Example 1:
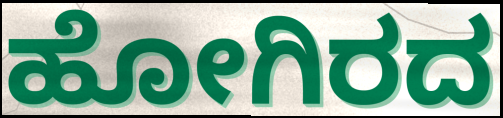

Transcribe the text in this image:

ಹೋಗಿರದ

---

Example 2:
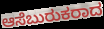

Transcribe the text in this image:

ಆಸೆಬುರುಕರಾದ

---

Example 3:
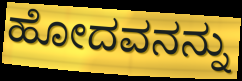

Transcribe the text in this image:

ಹೋದವನನ್ನು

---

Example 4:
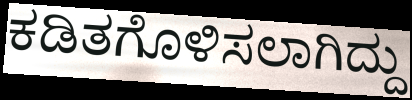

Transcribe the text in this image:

ಕಡಿತಗೊಳಿಸಲಾಗಿದ್ದು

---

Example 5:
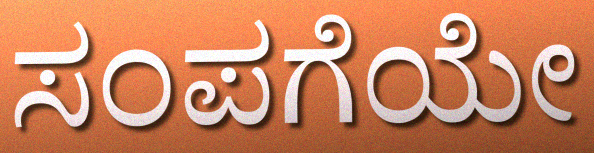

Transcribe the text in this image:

ಸಂಪಗೆಯೇ